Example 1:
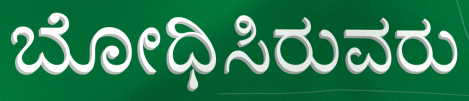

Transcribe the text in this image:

ಬೋಧಿಸಿರುವರು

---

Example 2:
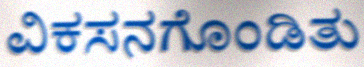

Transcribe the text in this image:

ವಿಕಸನಗೊಂಡಿತು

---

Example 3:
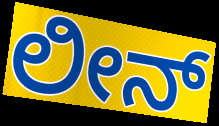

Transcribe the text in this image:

ಲೀನ್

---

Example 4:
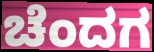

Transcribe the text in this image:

ಚೆಂದಗ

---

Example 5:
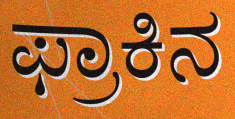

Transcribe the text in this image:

ಫ್ರಾಕಿನ